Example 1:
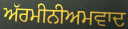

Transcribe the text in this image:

ਅੱਰਮੀਨੀਅਮਵਾਦ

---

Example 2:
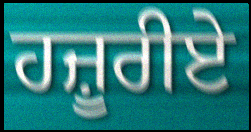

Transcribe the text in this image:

ਹਜ਼ੂਰੀਏ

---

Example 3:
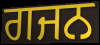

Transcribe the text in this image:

ਗਜਨ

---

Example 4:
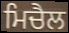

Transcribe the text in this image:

ਮਿਚੈਲ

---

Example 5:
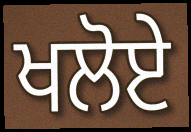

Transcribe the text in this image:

ਖਲੋਏ